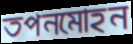
তপনমোহন